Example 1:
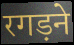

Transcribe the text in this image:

रगड़ने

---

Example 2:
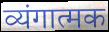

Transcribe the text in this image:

व्यंगात्मक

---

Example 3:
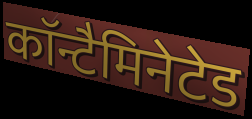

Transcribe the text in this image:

कॉन्टैमिनेटेड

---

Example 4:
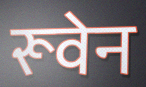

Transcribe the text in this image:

रूवेन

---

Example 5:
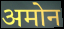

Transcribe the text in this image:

अमोन